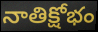
నాతిక్షోభం